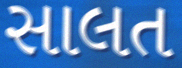
સાલત